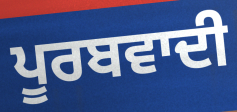
ਪੂਰਬਵਾਦੀ